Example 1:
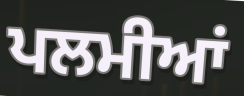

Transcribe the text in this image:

ਪਲਮੀਆਂ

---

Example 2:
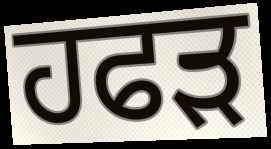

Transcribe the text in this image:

ਹਫੜ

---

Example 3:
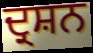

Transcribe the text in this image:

ਦ੍ਰਸ਼ਨ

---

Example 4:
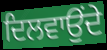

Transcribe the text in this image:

ਦਿਲਵਾਉਂਦੇ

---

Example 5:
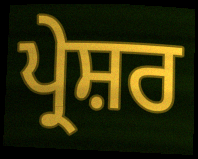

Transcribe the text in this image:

ਪ੍ਰੇਸ਼ਰ